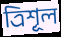
ত্রিশূল